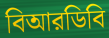
বিআরডিবি